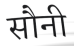
सौनी